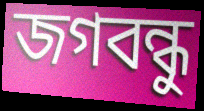
জগবন্ধু